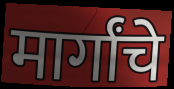
मार्गांचे